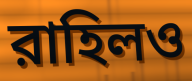
রাহিলও